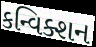
કન્વિક્શન